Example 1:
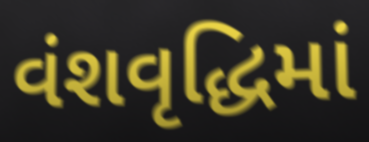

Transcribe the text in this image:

વંશવૃદ્ધિમાં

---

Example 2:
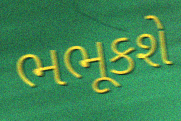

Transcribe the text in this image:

ભભૂકશે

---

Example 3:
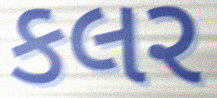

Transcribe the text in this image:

કલર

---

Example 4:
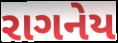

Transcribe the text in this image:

રાગનેય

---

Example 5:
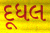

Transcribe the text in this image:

દૂધલ